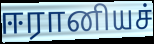
ஈரானியச்